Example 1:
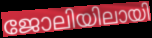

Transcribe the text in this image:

ജോലിയിലായി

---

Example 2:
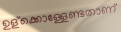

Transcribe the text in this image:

ഉള്ക്കൊള്ളേണ്ടതാണ്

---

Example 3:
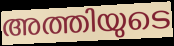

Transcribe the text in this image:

അത്തിയുടെ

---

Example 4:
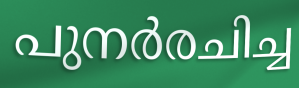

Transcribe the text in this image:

പുനർരചിച്ച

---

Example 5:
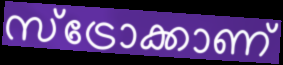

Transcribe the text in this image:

സ്ട്രോക്കാണ്